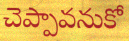
చెప్పావనుకో